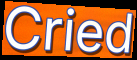
Cried